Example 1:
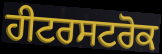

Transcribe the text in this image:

ਹੀਟਰਸਟਰੋਕ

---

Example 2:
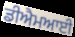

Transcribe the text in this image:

ਡੀਐਮਆਈ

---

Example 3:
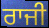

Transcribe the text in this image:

ਰਾਜੀ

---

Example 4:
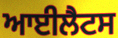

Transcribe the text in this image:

ਆਈਲੈਟਸ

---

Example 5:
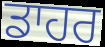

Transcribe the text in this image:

ਡਾਹਰ